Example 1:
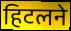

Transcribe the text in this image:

हिटलने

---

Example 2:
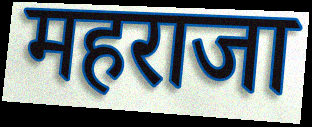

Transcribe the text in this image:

महराजा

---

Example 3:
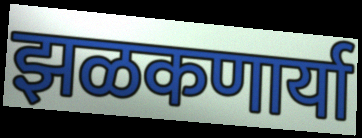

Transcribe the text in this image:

झळकणार्या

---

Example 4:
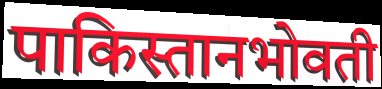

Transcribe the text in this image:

पाकिस्तानभोवती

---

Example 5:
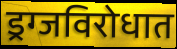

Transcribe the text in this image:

ड्रग्जविरोधात